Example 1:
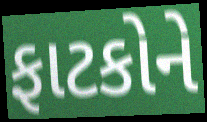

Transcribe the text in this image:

ફાટકોને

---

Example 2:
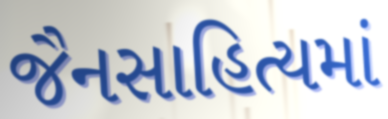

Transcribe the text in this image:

જૈનસાહિત્યમાં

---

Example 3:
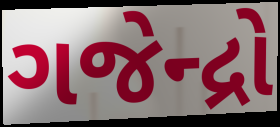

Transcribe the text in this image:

ગજેન્દ્રો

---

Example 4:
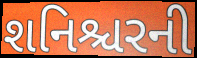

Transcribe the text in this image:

શનિશ્ચરની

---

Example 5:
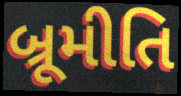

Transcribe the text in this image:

બ્રૂમીતિ